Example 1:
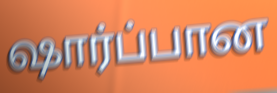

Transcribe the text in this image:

ஷார்ப்பான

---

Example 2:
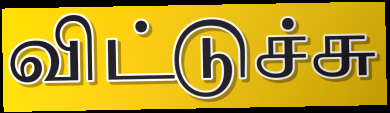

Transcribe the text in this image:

விட்டுச்சு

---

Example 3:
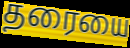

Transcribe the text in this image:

தரையை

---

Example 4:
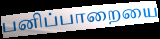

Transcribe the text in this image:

பனிப்பாறையை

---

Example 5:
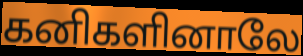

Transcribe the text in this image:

கனிகளினாலே